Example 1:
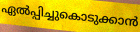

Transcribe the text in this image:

ഏൽപ്പിച്ചുകൊടുക്കാൻ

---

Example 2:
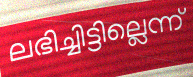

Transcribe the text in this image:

ലഭിച്ചിട്ടില്ലെന്ന്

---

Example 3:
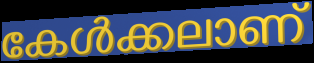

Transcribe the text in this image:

കേൾക്കലാണ്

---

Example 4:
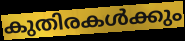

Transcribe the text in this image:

കുതിരകൾക്കും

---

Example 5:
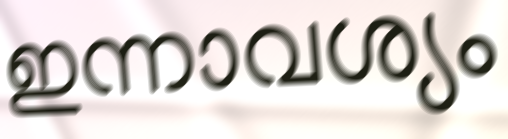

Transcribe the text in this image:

ഇന്നാവശ്യം